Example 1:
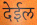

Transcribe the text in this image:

देईल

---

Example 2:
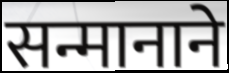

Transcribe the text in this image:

सन्मानाने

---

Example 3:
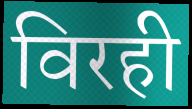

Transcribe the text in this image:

विरही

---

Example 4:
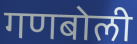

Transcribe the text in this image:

गणबोली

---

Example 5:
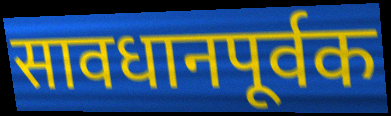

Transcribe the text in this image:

सावधानपूर्वक